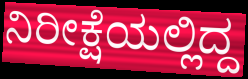
ನಿರೀಕ್ಷೆಯಲ್ಲಿದ್ದ